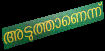
അടുത്താണെന്ന്